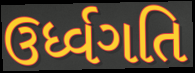
ઉર્ધ્વગતિ